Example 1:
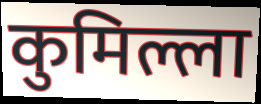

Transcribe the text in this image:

कुमिल्ला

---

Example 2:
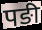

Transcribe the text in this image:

पङी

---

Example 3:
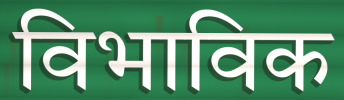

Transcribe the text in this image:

विभाविक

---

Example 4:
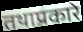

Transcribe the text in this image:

तथाप्रकारे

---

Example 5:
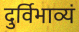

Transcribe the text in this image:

दुर्विभाव्यं